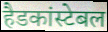
हैडकांस्टेबल